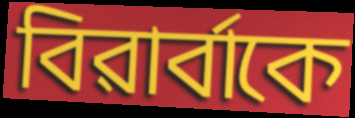
বিৱাৰ্বাকে